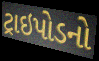
ટ્રાઇપોડનો